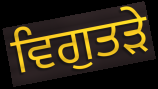
ਵਿਗੁਤੜੇ